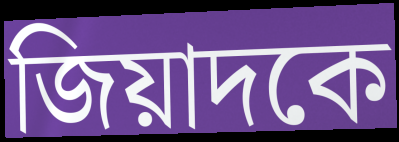
জিয়াদকে